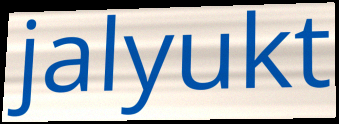
jalyukt